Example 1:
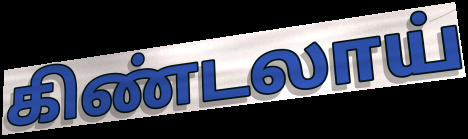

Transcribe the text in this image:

கிண்டலாய்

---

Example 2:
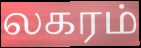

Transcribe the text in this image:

லகரம்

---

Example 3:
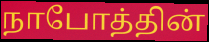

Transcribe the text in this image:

நாபோத்தின்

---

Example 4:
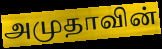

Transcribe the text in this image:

அமுதாவின்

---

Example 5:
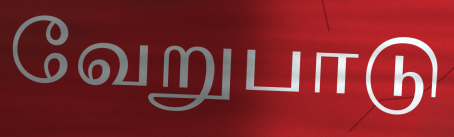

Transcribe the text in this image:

வேறுபாடு